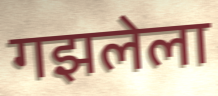
गझलेला